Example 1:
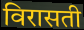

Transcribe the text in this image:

विरासती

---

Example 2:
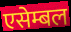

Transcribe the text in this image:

एसेम्बल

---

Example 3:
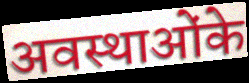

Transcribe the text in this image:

अवस्थाओंके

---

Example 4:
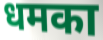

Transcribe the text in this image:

धमका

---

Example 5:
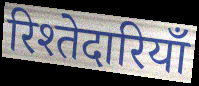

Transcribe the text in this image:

रिश्तेदारियाँ